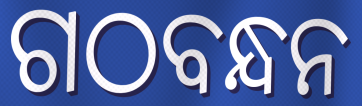
ଗଠବନ୍ଧନ